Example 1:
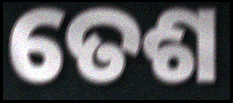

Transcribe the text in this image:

ତେଶ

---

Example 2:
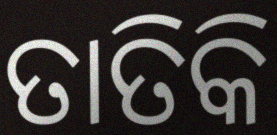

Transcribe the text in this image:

ତାତିକି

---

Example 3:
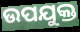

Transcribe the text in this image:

ଉପଯୁକ୍ତ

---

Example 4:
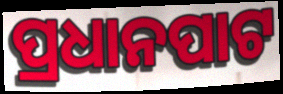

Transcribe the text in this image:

ପ୍ରଧାନପାଟ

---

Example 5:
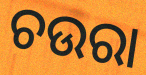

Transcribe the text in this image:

ଚଉରା